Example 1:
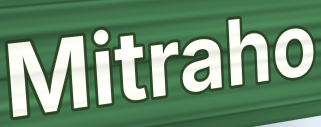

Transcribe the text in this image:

Mitraho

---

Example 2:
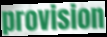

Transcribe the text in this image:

provision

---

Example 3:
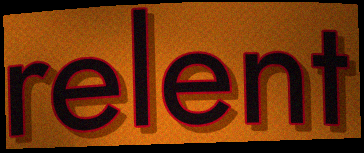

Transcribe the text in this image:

relent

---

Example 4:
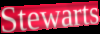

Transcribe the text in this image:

Stewarts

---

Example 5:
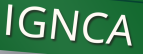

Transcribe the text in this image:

IGNCA